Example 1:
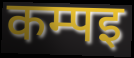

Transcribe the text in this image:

कम्पइ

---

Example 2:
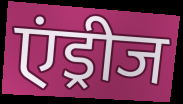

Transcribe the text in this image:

एंड्रीज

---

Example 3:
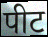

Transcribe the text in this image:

पीट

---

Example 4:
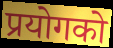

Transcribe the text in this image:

प्रयोगको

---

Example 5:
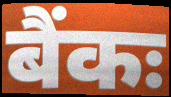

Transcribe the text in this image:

बैंकः